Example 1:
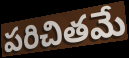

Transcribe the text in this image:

పరిచితమే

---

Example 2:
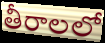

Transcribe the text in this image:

తీరాలలో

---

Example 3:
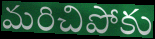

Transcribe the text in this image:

మరిచిపోకు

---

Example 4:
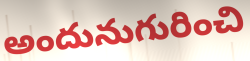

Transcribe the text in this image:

అందునుగురించి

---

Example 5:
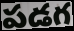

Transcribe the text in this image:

పడగ